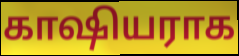
காஷியராக